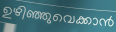
ഉഴിഞ്ഞുവെക്കാൻ